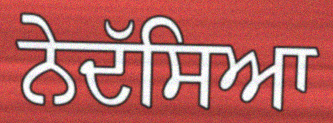
ਨੇਦੱਸਿਆ